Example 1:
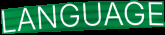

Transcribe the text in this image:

LANGUAGE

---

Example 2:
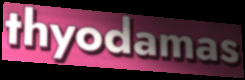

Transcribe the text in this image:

thyodamas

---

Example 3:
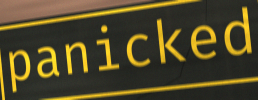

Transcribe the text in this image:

panicked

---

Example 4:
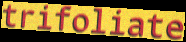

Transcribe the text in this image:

trifoliate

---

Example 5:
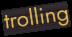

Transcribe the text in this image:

trolling